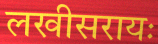
लखीसरायः